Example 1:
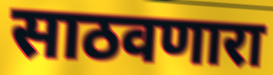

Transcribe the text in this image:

साठवणारा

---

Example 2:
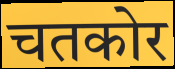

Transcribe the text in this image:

चतकोर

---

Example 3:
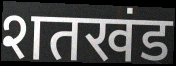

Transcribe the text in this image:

शतखंड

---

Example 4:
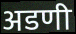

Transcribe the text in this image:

अडणी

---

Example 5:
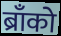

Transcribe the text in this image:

ब्राँको